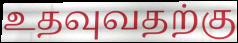
உதவுவதற்கு